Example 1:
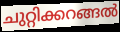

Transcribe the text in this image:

ചുറ്റിക്കറങ്ങൽ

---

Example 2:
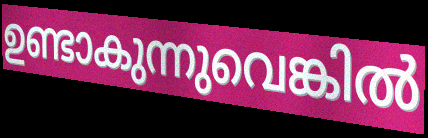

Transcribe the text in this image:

ഉണ്ടാകുന്നുവെങ്കിൽ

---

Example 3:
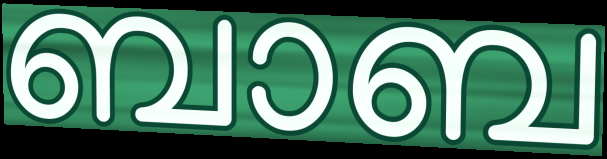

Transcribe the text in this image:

ബാബ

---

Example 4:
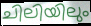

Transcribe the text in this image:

ചിലിയിലും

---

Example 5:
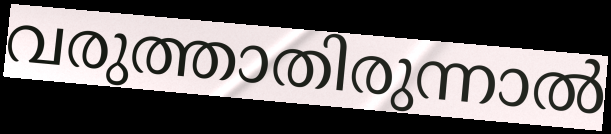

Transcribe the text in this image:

വരുത്താതിരുന്നാൽ